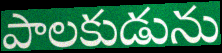
పాలకుడును